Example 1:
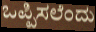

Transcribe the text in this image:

ಒಪ್ಪಿಸಲೆಂದು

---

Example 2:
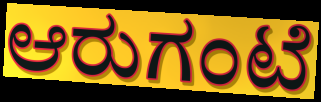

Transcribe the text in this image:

ಆರುಗಂಟೆ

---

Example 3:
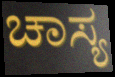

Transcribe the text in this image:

ಚಾಸ್ಯ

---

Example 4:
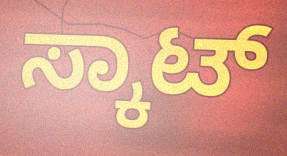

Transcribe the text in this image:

ಸ್ಕಾಟ್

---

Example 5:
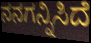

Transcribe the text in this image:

ನನಗನ್ನಿಸಿದೆ